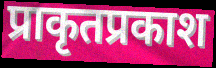
प्राकृतप्रकाश